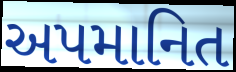
અપમાનિત